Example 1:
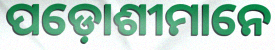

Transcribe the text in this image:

ପଡ଼ୋଶୀମାନେ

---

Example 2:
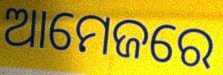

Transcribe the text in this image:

ଆମେଜରେ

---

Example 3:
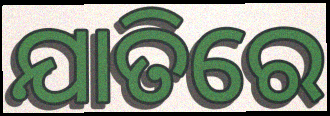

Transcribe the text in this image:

ଯାତିରେ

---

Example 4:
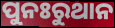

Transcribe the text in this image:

ପୁନଃରୁଥାନ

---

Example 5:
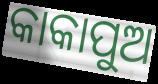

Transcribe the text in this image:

କାକାପୁଅ